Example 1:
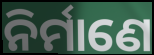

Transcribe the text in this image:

ନିର୍ମାଣେ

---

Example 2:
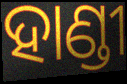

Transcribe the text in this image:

ହାଣ୍ଡୀ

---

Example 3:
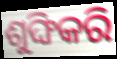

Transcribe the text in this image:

ଶୁଙ୍ଘିକରି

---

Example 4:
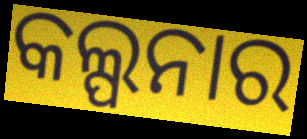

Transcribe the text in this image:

କଲ୍ପନାର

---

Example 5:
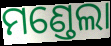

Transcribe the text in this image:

ମଣ୍ଡେଲା